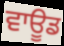
ਵਾਊਡ